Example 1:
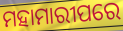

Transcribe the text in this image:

ମହାମାରୀପରେ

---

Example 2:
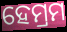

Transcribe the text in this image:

ହେମ୍ରମ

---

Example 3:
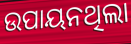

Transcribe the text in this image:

ଉପାୟନଥିଲା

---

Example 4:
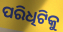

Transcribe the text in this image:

ପରିଧିଟିକୁ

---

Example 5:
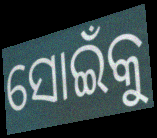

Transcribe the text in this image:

ସୋଇଁକୁ